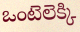
ఒంటెలెక్కి